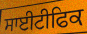
ਸਾਈਟੀਫਿਕ